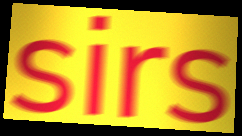
sirs